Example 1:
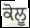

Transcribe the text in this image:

ਕੋਲੂ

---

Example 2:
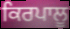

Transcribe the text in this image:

ਕਿਰਪਾਲੂ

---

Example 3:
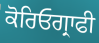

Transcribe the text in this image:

ਕੋਰਿਓਗ੍ਰਾਫੀ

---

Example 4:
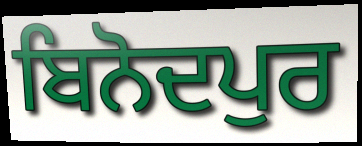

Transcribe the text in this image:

ਬਿਨੋਦਪੁਰ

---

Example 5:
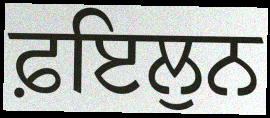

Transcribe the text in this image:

ਫ਼ਇਲੁਨ